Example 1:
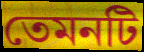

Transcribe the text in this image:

তেমনটি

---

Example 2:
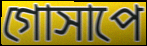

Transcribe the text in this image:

গোসাপে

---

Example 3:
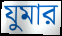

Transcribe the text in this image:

যুমার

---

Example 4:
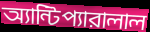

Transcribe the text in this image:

অ্যান্টিপ্যারালাল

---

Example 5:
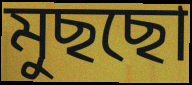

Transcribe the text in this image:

মুছছো